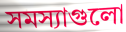
সমস্যাগুলো